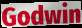
Godwin